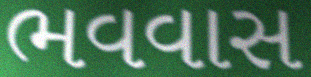
ભવવાસ